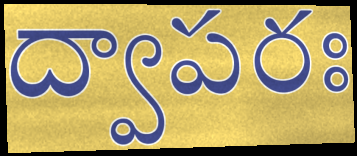
ద్వాపరః